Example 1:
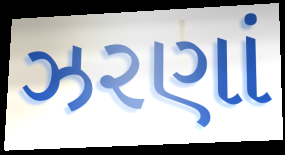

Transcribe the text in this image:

ઝરણાં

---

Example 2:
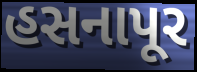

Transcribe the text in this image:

હસનાપૂર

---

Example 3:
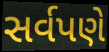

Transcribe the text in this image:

સર્વપણે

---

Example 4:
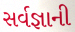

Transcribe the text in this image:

સર્વજ્ઞાની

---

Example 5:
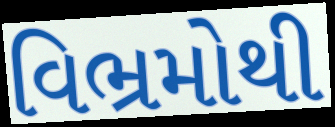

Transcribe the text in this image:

વિભ્રમોથી